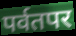
पर्वतपर